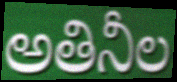
అతినీల